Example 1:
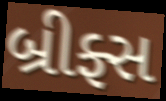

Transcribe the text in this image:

બ્રીફ્સ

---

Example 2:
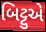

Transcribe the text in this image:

બિટ્ટુએ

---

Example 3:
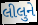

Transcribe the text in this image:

લીલુને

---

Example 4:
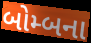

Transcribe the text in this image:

બોમ્બના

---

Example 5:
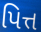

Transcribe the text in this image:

પિત્ત